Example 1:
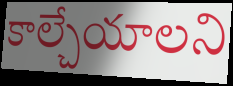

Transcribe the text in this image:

కాల్చేయాలని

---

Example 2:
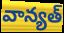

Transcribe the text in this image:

వాన్యత్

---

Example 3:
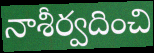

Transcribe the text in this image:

నాశీర్వదించి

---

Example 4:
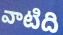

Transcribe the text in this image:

వాటిది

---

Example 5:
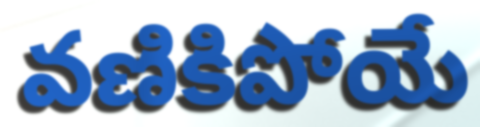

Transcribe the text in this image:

వణికిపోయే